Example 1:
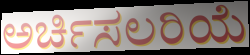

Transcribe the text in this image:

ಅರ್ಚಿಸಲರಿಯೆ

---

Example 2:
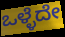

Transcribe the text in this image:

ಒಳ್ಳೆದೇ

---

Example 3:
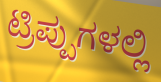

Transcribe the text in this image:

ಟ್ರಿಪ್ಪುಗಳಲ್ಲಿ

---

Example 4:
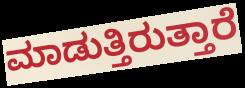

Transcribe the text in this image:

ಮಾಡುತ್ತಿರುತ್ತಾರೆ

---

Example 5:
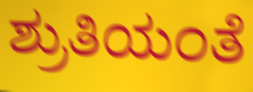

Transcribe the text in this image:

ಶ್ರುತಿಯಂತೆ